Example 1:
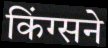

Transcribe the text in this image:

किंग्सने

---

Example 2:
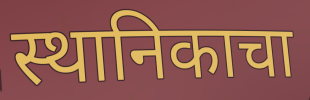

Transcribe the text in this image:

स्थानिकाचा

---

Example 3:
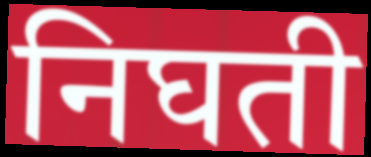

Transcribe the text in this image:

निघती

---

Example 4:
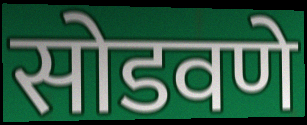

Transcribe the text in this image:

सोडवणे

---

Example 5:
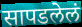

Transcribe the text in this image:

सापडलेलं